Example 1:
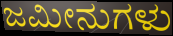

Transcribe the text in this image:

ಜಮೀನುಗಳು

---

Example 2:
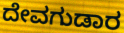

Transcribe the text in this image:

ದೇವಗುಡಾರ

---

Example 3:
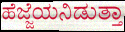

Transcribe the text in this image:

ಹೆಜ್ಜೆಯನಿಡುತ್ತಾ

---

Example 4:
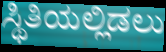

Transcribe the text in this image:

ಸ್ಥಿತಿಯಲ್ಲಿಡಲು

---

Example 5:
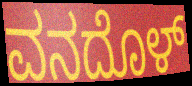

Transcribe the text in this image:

ವನದೊಳ್